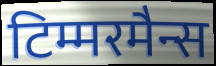
टिम्मरमैन्स